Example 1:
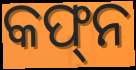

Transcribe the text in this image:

କଫ୍‌ନ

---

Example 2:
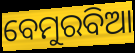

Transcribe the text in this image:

ବେମୁରବିଆ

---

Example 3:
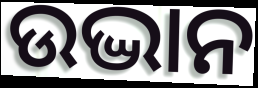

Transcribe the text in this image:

ଉଦ୍ଭାନ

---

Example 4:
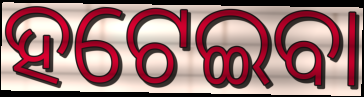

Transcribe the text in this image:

ହଟେଇବା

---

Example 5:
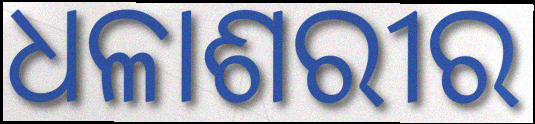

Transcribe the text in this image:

ଧଳାଶରୀର